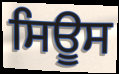
ਸਿਊਸ